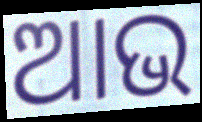
ଆଭ